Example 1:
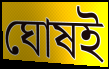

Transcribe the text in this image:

ঘোষই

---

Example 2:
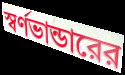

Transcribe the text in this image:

স্বর্ণভান্ডারের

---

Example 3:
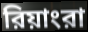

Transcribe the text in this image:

রিয়াংরা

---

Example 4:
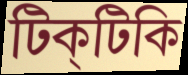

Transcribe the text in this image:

টিক্‌টিকি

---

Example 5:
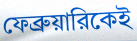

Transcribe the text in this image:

ফেব্রুয়ারিকেই